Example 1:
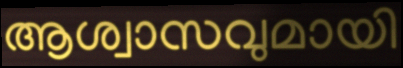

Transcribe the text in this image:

ആശ്വാസവുമായി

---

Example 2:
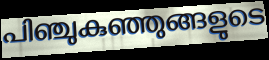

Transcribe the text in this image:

പിഞ്ചുകുഞ്ഞുങ്ങളുടെ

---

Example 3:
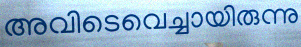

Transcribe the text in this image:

അവിടെവെച്ചായിരുന്നു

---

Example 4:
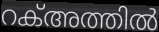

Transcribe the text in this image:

റക്അത്തിൽ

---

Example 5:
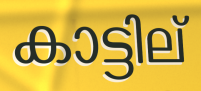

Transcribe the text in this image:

കാട്ടില്